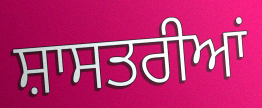
ਸ਼ਾਸਤਰੀਆਂ